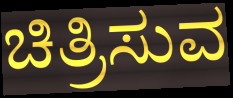
ಚಿತ್ರಿಸುವ